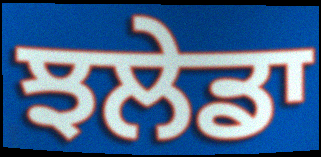
ਝਲੇਡਾ